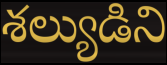
శల్యుడిని